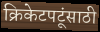
क्रिकेटपटूंसाठी